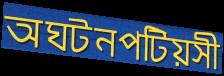
অঘটনপটিয়সী